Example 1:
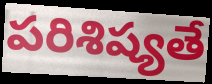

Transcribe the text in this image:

పరిశిష్యతే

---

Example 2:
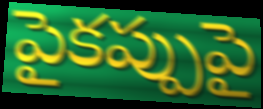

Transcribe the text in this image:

పైకప్పుపై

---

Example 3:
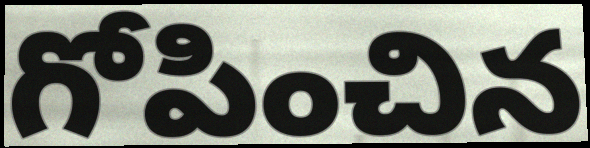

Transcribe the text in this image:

గోపించిన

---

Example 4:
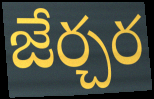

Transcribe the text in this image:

జేర్చర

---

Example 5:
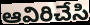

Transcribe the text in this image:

ఆవిరిచేసి